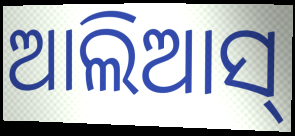
ଆଲିଆସ୍